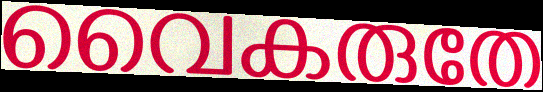
വൈകരുതേ